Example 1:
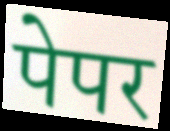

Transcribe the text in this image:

पेपर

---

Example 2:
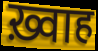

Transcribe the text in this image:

ख़्वाह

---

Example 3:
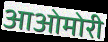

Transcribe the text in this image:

आओमोरी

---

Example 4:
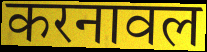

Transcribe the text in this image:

करनावल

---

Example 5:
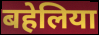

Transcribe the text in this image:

बहेलिया